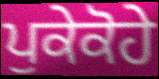
ਪੁਕੇਕੋਹੇ